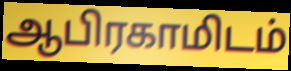
ஆபிரகாமிடம்